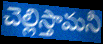
చెల్లిస్తామనీ